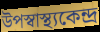
উপস্বাস্থ্যকেন্দ্র